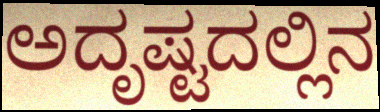
ಅದೃಷ್ಟದಲ್ಲಿನ